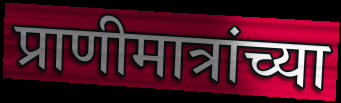
प्राणीमात्रांच्या